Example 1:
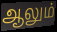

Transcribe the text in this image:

ஆலும்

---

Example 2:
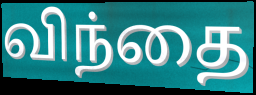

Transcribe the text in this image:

விந்தை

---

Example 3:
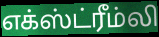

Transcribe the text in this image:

எக்ஸ்ட்ரீம்லி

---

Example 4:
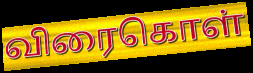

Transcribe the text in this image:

விரைகொள்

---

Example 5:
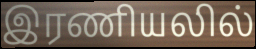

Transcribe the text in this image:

இரணியலில்